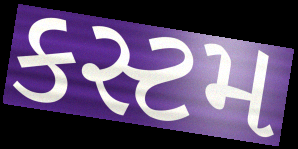
કસ્ટમ